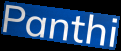
Panthi